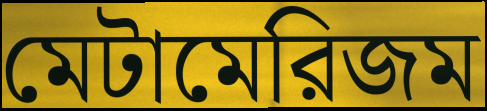
মেটামেরিজম